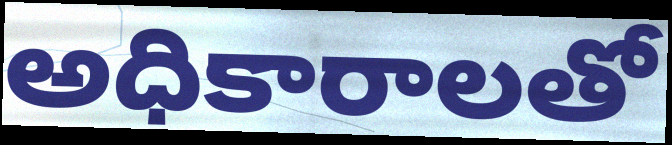
అధికారాలతో